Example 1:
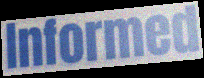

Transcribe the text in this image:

Informed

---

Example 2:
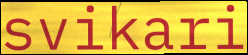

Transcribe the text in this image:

svikari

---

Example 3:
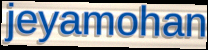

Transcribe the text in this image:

jeyamohan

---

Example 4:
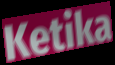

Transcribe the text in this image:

Ketika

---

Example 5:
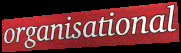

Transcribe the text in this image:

organisational